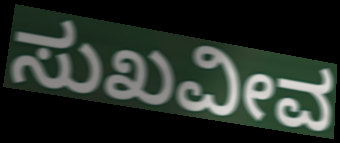
ಸುಖವೀವ